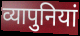
व्यापुनियां